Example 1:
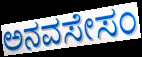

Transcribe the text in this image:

ಅನವಸೇಸಂ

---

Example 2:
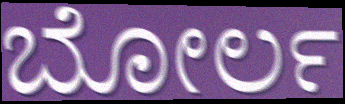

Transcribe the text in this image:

ಬೋರ್ಲ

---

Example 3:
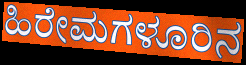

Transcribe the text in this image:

ಹಿರೇಮಗಳೂರಿನ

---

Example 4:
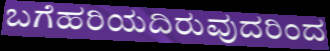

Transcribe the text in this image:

ಬಗೆಹರಿಯದಿರುವುದರಿಂದ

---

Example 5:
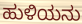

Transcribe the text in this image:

ಹುಳಿಯನು